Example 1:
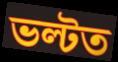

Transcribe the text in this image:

ভল্টত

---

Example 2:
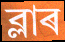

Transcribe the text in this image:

ব্লাৰ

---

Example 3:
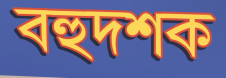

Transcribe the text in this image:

বহুদশক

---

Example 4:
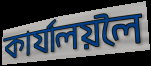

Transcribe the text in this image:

কাৰ্যালয়লৈ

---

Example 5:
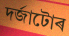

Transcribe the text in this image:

দৰ্জাটোৰ